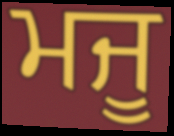
ਮਜੂ